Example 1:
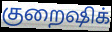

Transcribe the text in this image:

குறைஷிக்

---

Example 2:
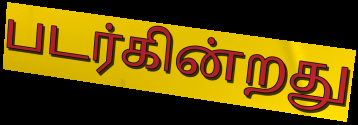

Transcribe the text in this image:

படர்கின்றது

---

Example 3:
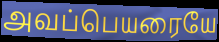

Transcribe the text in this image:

அவப்பெயரையே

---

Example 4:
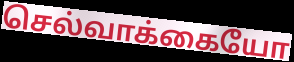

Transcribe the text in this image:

செல்வாக்கையோ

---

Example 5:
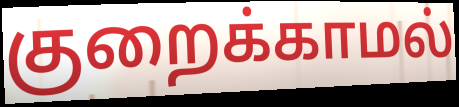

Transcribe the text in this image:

குறைக்காமல்